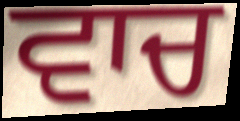
ਵਾਚ